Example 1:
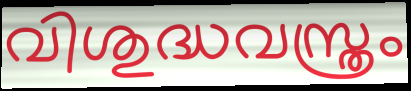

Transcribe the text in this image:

വിശുദ്ധവസ്ത്രം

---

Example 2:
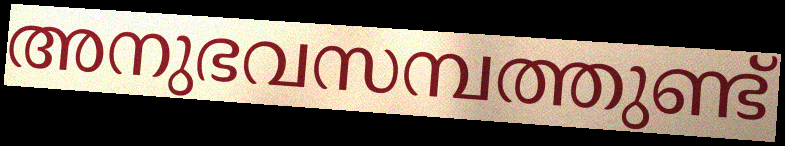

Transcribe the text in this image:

അനുഭവസമ്പത്തുണ്ട്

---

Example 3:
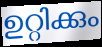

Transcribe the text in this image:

ഉറ്റിക്കും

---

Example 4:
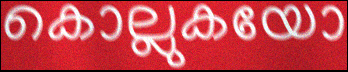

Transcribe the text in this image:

കൊല്ലുകയോ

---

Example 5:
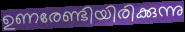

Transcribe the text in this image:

ഉണരേണ്ടിയിരിക്കുന്നു